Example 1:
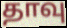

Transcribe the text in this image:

தாவு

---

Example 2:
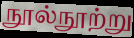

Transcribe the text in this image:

நூல்நூற்று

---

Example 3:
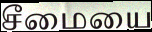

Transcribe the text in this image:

சீமையை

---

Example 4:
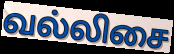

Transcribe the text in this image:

வல்லிசை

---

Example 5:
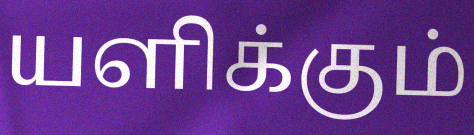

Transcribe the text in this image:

யளிக்கும்